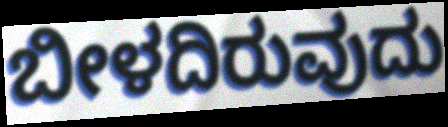
ಬೀಳದಿರುವುದು